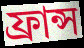
ফ্রান্স